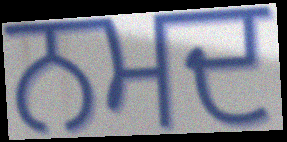
ਨਮਦ